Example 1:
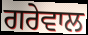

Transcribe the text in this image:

ਗਰੇਵਾਲ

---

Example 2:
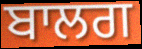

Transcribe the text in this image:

ਬਾਲਗ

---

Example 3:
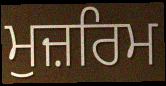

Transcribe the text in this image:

ਮੁਜ਼ਰਿਮ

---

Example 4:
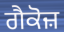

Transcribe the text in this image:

ਗੈਕੋਜ਼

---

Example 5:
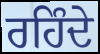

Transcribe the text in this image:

ਰਹਿੰਦੇ